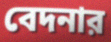
বেদনার